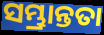
ସମ୍ଭ୍ରାନ୍ତତା